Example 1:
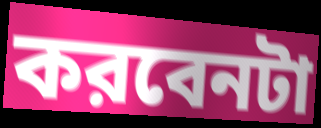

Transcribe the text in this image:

করবেনটা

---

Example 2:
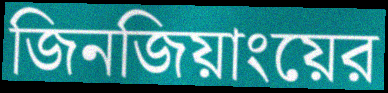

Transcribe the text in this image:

জিনজিয়াংয়ের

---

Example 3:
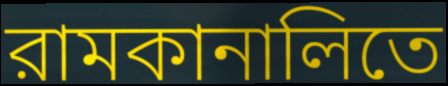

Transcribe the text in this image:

রামকানালিতে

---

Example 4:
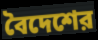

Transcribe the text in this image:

বৈদেশের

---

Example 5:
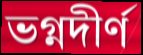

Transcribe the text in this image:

ভগ্নদীর্ণ